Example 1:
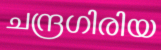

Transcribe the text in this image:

ചന്ദ്രഗിരിയ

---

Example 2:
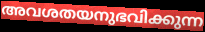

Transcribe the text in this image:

അവശതയനുഭവിക്കുന്ന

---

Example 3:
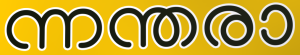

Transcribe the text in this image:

ന്നന്തരാ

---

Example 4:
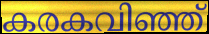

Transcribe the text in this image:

കരകവിഞ്ഞ്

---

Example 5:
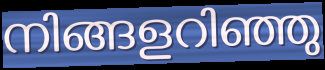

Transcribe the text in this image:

നിങ്ങളറിഞ്ഞു